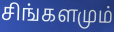
சிங்களமும்